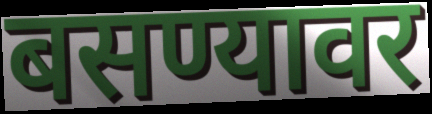
बसण्यावर